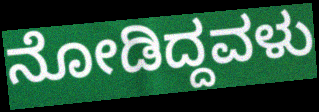
ನೋಡಿದ್ದವಳು